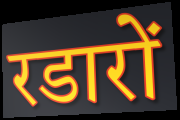
रडारों